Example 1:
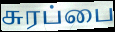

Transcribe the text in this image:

சுரப்பை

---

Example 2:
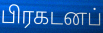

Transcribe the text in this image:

பிரகடனப்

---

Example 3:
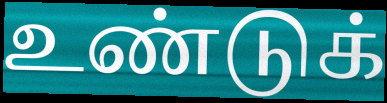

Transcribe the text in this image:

உண்டுக்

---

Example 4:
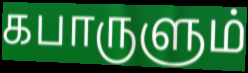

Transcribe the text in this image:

கபாருளும்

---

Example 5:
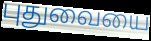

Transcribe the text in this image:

புதுவையை